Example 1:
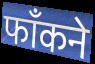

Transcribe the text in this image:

फाँकने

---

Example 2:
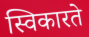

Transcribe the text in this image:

स्विकारते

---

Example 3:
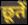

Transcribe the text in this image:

छूतें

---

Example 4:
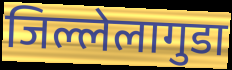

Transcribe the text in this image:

जिल्लेलागुडा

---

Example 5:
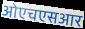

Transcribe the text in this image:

ओएचएसआर